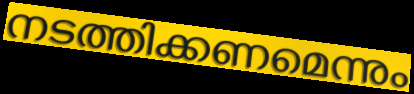
നടത്തിക്കണമെന്നും